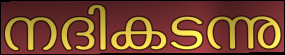
നദികടന്നു